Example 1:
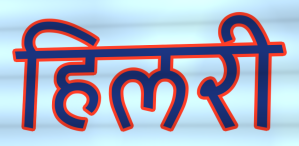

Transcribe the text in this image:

हिलरी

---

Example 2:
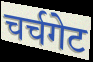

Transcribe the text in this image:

चर्चगेट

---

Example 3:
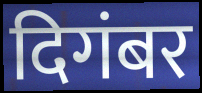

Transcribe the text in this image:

दिगंबर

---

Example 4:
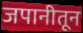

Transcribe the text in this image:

जपानीतून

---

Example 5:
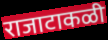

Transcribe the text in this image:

राजाटाकळी